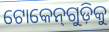
ଟୋକେନ୍‌ଗୁଡ଼ିକୁ